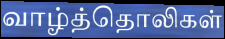
வாழ்த்தொலிகள்